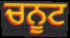
ਚਨੂਟ